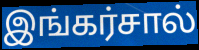
இங்கர்சால்